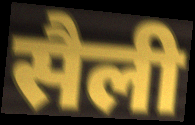
सैली